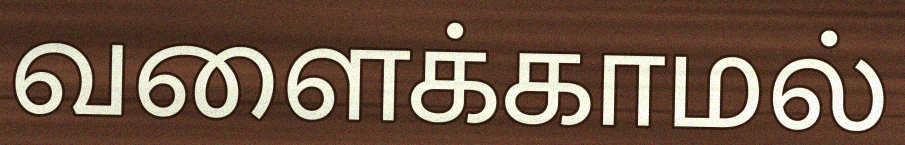
வளைக்காமல்